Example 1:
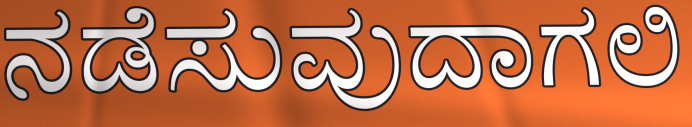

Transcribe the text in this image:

ನಡೆಸುವುದಾಗಲಿ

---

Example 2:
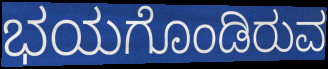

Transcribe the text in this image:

ಭಯಗೊಂಡಿರುವ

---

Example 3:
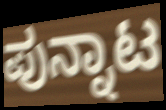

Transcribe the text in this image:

ಪುನ್ನಾಟ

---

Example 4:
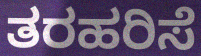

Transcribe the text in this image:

ತರಹರಿಸೆ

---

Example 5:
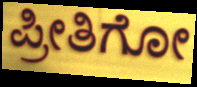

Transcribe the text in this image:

ಪ್ರೀತಿಗೋ